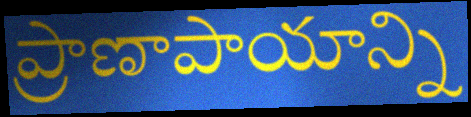
ప్రాణాపాయాన్ని